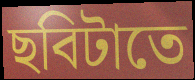
ছবিটাতে